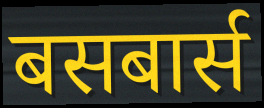
बसबार्स